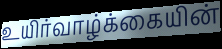
உயிர்வாழ்க்கையின்